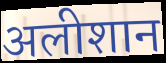
अलीशान